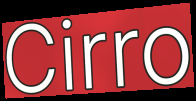
Cirro